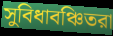
সুবিধাবঞ্চিতরা